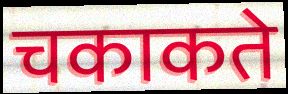
चकाकते